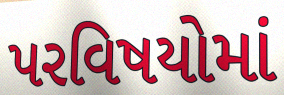
પરવિષયોમાં